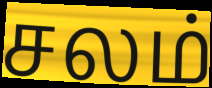
சலம்